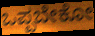
ಒಪ್ಪಬೇಕೋ